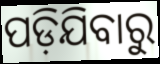
ପଡ଼ିଯିବାରୁ